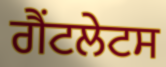
ਗੈਂਟਲੇਟਸ